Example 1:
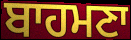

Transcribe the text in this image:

ਬਾਹਮਣਾ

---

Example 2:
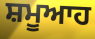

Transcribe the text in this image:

ਸ਼ਮੂਆਹ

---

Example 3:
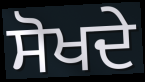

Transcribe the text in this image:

ਸੋਖਦੇ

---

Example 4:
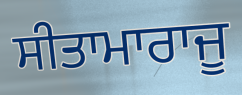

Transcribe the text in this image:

ਸੀਤਾਮਾਰਾਜੂ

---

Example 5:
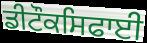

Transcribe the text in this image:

ਡੀਟੌਕਸਿਫਾਈ